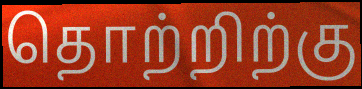
தொற்றிற்கு